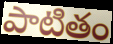
పాటితం